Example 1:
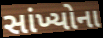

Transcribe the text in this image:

સાંખ્યોના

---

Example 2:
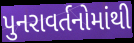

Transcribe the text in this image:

પુનરાવર્તનોમાંથી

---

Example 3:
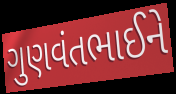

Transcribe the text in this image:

ગુણવંતભાઈને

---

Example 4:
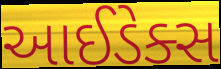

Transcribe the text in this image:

આઈડેક્સ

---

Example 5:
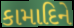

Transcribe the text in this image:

કામાદિને